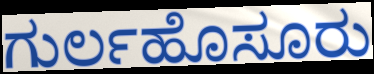
ಗುರ್ಲಹೊಸೂರು